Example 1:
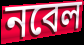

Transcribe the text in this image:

নবেল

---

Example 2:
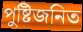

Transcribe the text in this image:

পুষ্টিজনিত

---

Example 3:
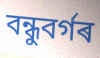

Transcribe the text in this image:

বন্ধুবৰ্গৰ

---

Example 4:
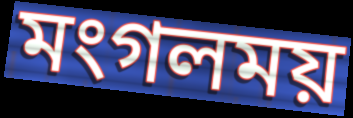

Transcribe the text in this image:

মংগলময়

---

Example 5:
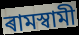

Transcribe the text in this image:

ৰামস্বামী